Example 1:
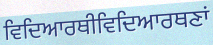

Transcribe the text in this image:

ਵਿਦਿਆਰਥੀਵਿਦਿਆਰਥਣਾਂ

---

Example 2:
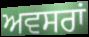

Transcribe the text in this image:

ਅਵਸਰਾਂ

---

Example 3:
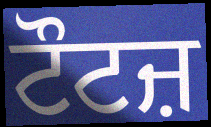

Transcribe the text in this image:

ਟੌਟਜ਼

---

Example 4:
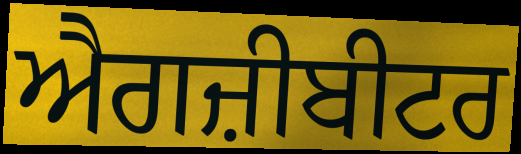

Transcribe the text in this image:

ਐਗਜ਼ੀਬੀਟਰ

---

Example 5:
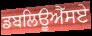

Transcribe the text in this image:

ਡਬਲਿਊਐੱਸਏ